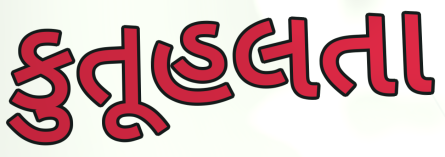
કુતૂહલતા